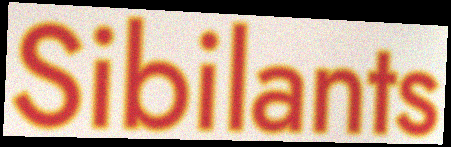
Sibilants